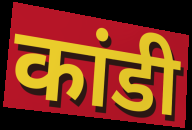
कांडी